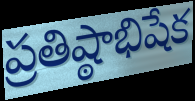
ప్రతిష్ఠాభిషేక